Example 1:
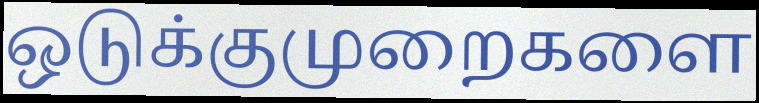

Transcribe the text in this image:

ஒடுக்குமுறைகளை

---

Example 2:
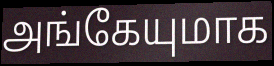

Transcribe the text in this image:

அங்கேயுமாக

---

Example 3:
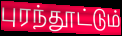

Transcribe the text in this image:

புரந்தூட்டும்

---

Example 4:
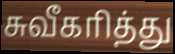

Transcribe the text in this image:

சுவீகரித்து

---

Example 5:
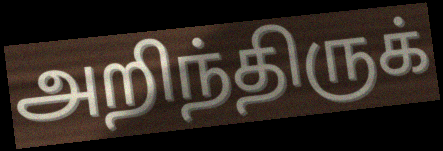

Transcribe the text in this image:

அறிந்திருக்